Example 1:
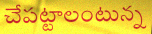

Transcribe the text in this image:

చేపట్టాలంటున్న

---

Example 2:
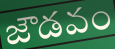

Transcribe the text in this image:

జౌడవం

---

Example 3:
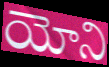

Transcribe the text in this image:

యోని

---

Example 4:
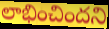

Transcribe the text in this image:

లాభించిందని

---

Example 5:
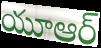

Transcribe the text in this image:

యూఆర్